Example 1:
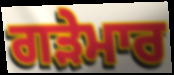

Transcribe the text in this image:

ਗੜੇਮਾਰ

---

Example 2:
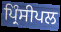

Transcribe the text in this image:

ਪ੍ਰਿੰਸੀਪਲ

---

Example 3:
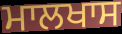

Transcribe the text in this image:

ਮਾਲਖਾਸ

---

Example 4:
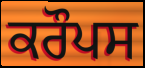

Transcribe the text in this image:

ਕਰੌਪਸ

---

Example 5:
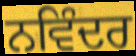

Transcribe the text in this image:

ਨਵਿੰਦਰ